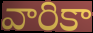
వారికా